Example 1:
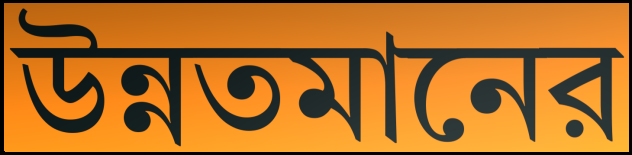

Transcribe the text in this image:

উন্নতমানের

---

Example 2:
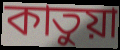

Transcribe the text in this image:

কাতুয়া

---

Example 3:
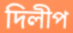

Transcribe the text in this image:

দিলীপ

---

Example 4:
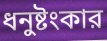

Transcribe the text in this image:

ধনুষ্টংকার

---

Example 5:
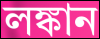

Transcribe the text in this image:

লঙ্কান